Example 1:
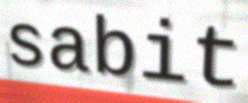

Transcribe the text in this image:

sabit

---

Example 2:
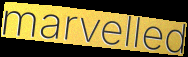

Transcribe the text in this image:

marvelled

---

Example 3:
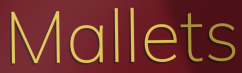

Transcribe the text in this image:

Mallets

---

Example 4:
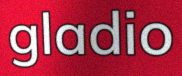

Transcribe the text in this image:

gladio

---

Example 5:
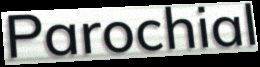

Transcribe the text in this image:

Parochial